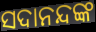
ସଦାନନ୍ଦଙ୍କ